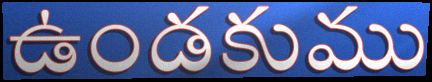
ఉండకుము